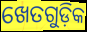
ଖେତଗୁଡ଼ିକ